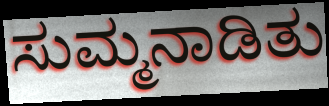
ಸುಮ್ಮನಾಡಿತು